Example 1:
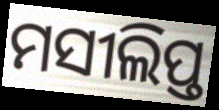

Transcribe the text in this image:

ମସୀଲିପ୍ତ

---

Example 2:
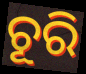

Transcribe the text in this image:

ଚୂରି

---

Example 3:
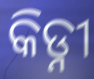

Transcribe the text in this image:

କିଡ୍ନୀ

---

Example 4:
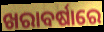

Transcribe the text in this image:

ଖରାବର୍ଷାରେ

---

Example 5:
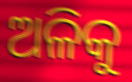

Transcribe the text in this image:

ଅଳିକୁ